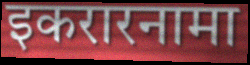
इकरारनामा